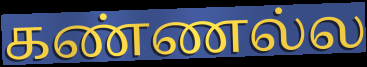
கண்ணல்ல